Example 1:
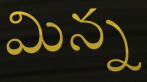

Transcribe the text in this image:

మిన్న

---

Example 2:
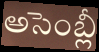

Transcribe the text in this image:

అసెంబ్లీ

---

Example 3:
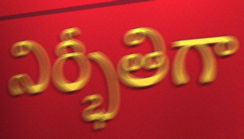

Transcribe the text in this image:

నిర్భీతిగా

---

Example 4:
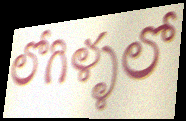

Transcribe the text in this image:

లోగిళ్ళలో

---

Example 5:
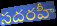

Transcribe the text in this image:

సదరహీ